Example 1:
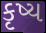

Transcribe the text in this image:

કૃષ્ય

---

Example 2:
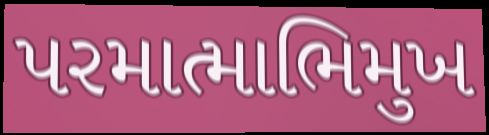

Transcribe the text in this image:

પરમાત્માભિમુખ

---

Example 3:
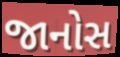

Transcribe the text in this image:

જાનોસ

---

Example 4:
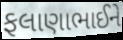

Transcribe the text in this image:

ફલાણાભાઈને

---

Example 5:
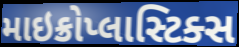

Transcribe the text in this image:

માઇક્રોપ્લાસ્ટિક્સ